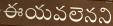
ఈయవలెనని